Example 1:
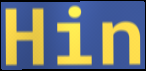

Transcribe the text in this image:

Hin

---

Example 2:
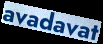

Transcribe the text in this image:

avadavat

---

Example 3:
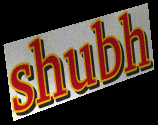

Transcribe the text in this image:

shubh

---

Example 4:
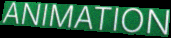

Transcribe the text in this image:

ANIMATION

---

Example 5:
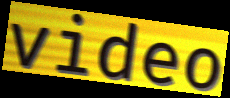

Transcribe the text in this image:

video